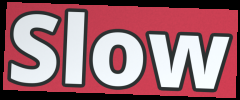
Slow